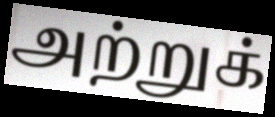
அற்றுக்